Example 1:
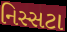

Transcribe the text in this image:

નિસ્સટા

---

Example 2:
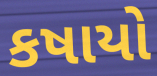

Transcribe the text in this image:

કષાયો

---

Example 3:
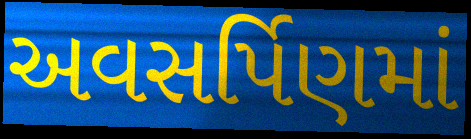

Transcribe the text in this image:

અવસર્પિણમાં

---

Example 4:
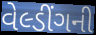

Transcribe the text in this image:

વેલ્ડીંગની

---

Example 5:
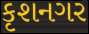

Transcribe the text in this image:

કૃશનગર